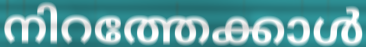
നിറത്തേക്കാൾ